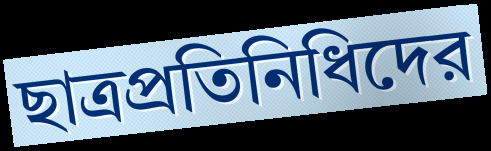
ছাত্রপ্রতিনিধিদের